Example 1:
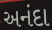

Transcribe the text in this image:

અનંદા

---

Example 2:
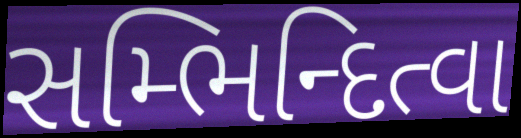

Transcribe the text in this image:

સમ્ભિન્દિત્વા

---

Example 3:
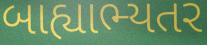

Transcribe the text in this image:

બાહ્યાભ્યતર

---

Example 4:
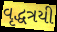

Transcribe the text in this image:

વૃદ્ધત્રયી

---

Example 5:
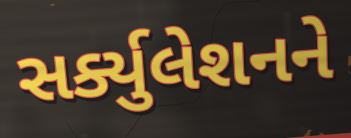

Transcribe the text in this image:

સર્ક્યુલેશનને